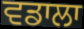
ਵਡਾਲਾ